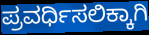
ಪ್ರವರ್ಧಿಸಲಿಕ್ಕಾಗಿ